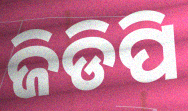
ଜିଡିପି